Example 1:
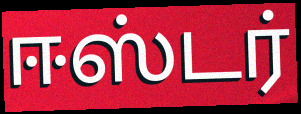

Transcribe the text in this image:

ஈஸ்டர்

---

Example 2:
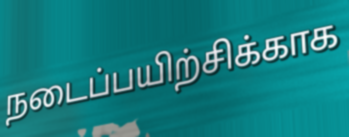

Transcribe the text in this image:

நடைப்பயிற்சிக்காக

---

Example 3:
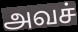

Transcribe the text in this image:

அவச்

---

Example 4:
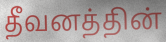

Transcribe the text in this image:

தீவனத்தின்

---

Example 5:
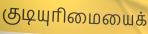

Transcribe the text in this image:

குடியுரிமையைக்